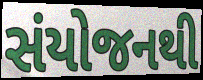
સંયોજનથી